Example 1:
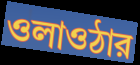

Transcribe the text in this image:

ওলাওঠার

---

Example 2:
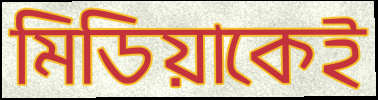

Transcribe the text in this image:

মিডিয়াকেই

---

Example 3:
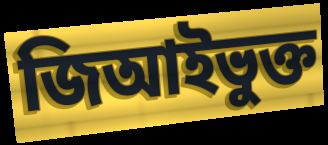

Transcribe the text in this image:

জিআইভুক্ত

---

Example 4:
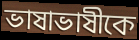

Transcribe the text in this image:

ভাষাভাষীকে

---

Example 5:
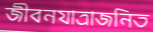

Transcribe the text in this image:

জীবনযাত্রাজনিত